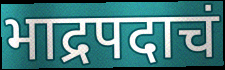
भाद्रपदाचं